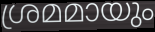
ശ്രമമായും